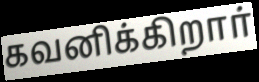
கவனிக்கிறார்